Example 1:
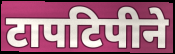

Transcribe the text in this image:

टापटिपीने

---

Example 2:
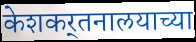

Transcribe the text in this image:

केशकर्तनालयाच्या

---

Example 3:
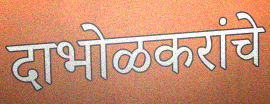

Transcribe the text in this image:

दाभोळकरांचे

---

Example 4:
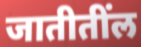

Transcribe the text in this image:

जातीतींल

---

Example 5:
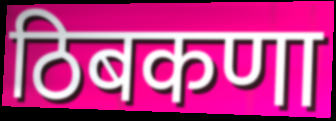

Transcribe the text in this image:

ठिबकणा